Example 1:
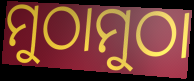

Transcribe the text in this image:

ମୁଠାମୁଠା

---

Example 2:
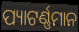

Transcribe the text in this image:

ପ୍ୟାଟର୍ଣ୍ଣମାନ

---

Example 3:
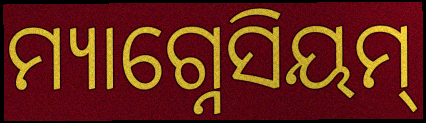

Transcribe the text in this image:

ମ୍ୟାଗ୍ନେସିୟମ୍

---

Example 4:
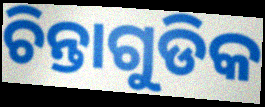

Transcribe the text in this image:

ଚିନ୍ତାଗୁଡିକ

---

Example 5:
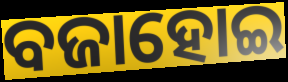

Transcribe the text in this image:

ବଜାହୋଇ